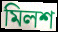
মিলশ